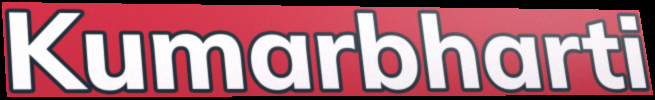
Kumarbharti